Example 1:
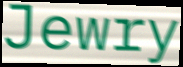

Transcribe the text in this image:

Jewry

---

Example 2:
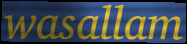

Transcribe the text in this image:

wasallam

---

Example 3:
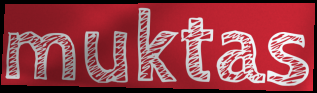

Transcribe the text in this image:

muktas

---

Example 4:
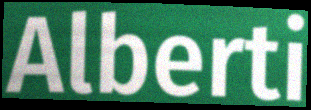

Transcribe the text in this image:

Alberti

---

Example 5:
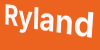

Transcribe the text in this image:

Ryland